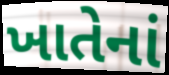
ખાતેનાં